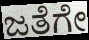
ಜತೆಗೇ